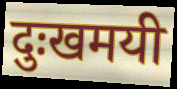
दुःखमयी